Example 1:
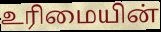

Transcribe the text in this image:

உரிமையின்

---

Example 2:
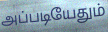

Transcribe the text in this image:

அப்படியேதும்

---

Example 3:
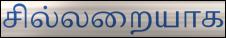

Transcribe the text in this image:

சில்லறையாக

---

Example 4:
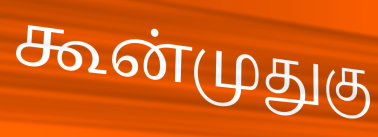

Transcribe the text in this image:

கூன்முதுகு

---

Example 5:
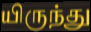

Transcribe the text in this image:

யிருந்து